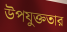
উপযুক্ততার